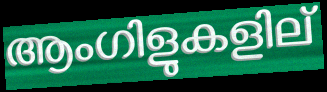
ആംഗിളുകളില്